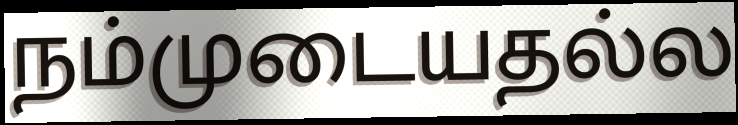
நம்முடையதல்ல